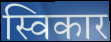
स्विकार